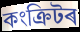
কংক্ৰিটৰ